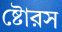
ষ্টোরস